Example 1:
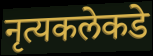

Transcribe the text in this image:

नृत्यकलेकडे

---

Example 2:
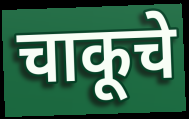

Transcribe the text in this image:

चाकूचे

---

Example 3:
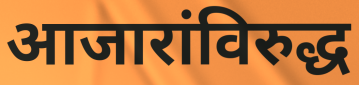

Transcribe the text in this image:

आजारांविरुद्ध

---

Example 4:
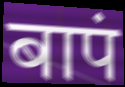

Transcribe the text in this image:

बापं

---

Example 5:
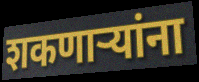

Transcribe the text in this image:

शकणार्‍यांना